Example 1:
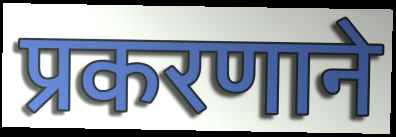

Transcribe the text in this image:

प्रकरणाने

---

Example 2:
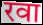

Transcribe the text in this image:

रवा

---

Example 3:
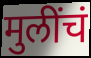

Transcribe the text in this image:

मुलींचं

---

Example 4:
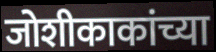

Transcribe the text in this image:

जोशीकाकांच्या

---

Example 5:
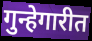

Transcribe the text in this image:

गुन्हेगारीत